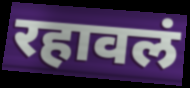
रहावलं